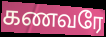
கணவரே